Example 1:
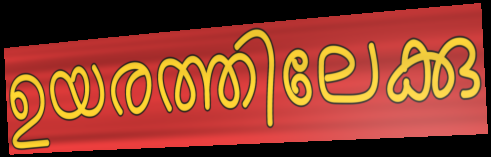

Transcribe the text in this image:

ഉയരത്തിലേക്കു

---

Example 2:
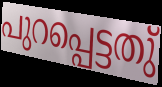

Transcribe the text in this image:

പുറപ്പെട്ടതു്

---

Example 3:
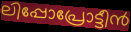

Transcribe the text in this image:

ലിപ്പോപ്രോട്ടീൻ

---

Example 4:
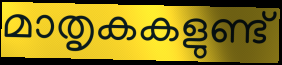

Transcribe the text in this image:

മാതൃകകളുണ്ട്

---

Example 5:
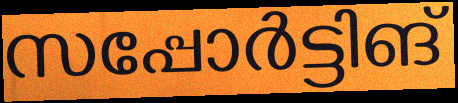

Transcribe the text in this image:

സപ്പോർട്ടിങ്